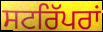
ਸਟਰਿੱਪਰਾਂ